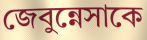
জেবুন্নেসাকে